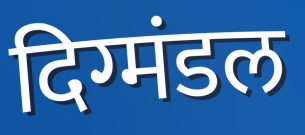
दिग्मंडल